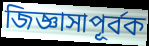
জিজ্ঞাসাপূর্বক